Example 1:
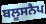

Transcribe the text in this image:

ਬਲੂਸਨੈਪ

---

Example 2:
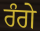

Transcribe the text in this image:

ਰੰਗੇ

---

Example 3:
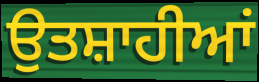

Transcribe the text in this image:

ਉਤਸ਼ਾਹੀਆਂ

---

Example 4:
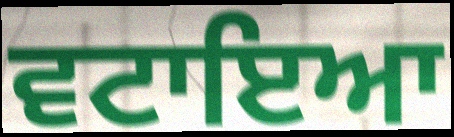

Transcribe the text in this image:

ਵਟਾਇਆ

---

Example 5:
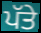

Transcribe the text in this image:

ਪੱਤੇ